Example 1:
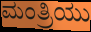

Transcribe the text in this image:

ಮಂತ್ರಿಯು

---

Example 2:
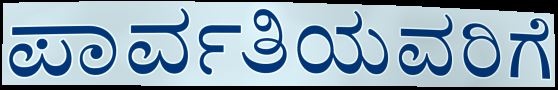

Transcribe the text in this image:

ಪಾರ್ವತಿಯವರಿಗೆ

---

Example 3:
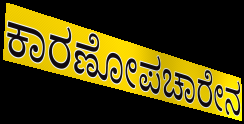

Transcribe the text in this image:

ಕಾರಣೋಪಚಾರೇನ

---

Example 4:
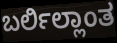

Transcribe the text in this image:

ಬರ್ಲಿಲ್ಲಾಂತ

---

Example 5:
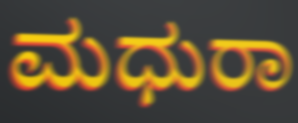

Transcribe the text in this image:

ಮಧುರಾ